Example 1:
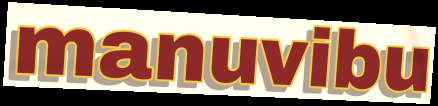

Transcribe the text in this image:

manuvibu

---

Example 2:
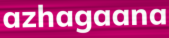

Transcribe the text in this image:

azhagaana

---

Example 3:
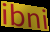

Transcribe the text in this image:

ibni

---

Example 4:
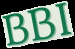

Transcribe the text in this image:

BBI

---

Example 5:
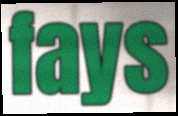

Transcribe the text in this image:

fays